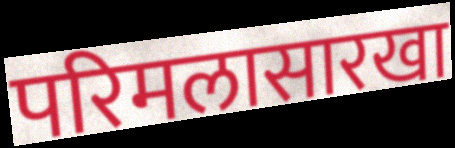
परिमलासारखा